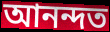
আনন্দত